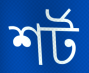
শর্ট